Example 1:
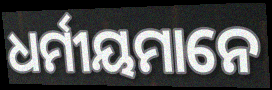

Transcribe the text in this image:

ଧର୍ମୀୟମାନେ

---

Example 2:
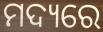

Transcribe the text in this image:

ମଦ୍ୟରେ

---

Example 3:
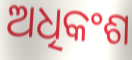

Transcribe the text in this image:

ଅଧିକଂଶ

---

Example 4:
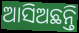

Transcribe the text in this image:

ଆସିଅଛନ୍ତି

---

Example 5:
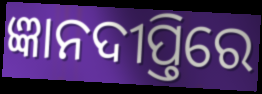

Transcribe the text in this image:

ଜ୍ଞାନଦୀପ୍ତିରେ